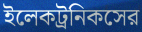
ইলেকট্রনিকসের